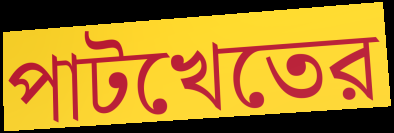
পাটখেতের